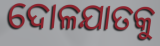
ଦୋଳଯାତକୁ